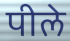
पीले